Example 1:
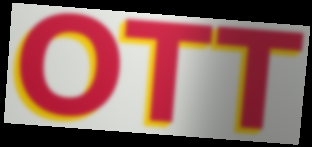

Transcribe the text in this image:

OTT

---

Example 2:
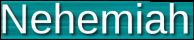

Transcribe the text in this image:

Nehemiah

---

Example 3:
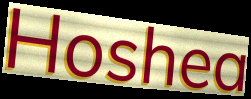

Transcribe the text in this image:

Hoshea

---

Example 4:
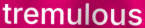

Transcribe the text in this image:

tremulous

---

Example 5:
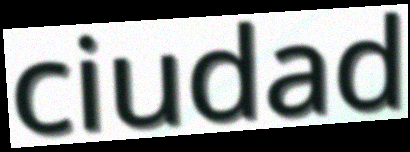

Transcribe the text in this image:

ciudad